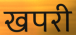
खपरी